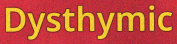
Dysthymic